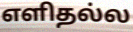
எளிதல்ல